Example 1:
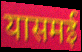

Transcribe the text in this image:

यासमई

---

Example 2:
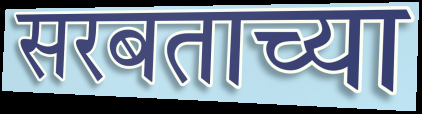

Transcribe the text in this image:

सरबताच्या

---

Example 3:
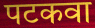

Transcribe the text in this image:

पटकवा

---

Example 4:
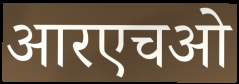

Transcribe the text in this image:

आरएचओ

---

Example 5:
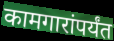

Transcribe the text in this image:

कामगारांपर्यंत